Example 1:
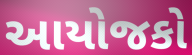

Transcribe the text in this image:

આયોજકો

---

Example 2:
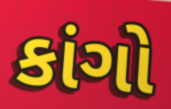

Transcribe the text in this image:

કાંગો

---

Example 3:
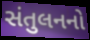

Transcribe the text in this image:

સંતુલનનો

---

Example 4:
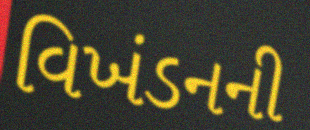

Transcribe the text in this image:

વિખંડનની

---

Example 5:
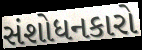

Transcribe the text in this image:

સંશોધનકારો